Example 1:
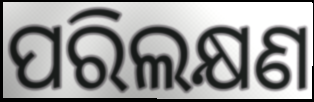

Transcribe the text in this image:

ପରିଲକ୍ଷଣ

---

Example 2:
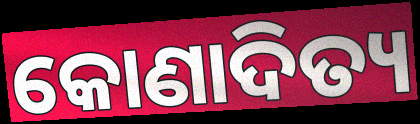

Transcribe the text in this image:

କୋଣାଦିତ୍ୟ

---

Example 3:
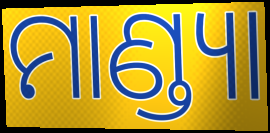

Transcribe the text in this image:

ମାଣ୍ଡ୍ୟା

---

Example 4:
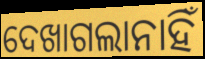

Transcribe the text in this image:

ଦେଖାଗଲାନାହିଁ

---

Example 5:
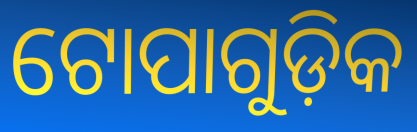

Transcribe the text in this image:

ଟୋପାଗୁଡ଼ିକ